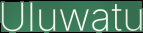
Uluwatu